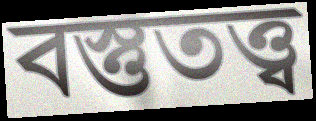
বস্তুতত্ত্ব